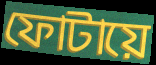
ফোটায়ে